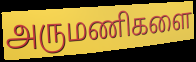
அருமணிகளை